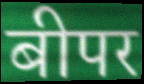
बीपर